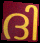
ദി